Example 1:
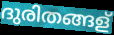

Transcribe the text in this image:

ദുരിതങ്ങള്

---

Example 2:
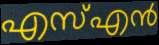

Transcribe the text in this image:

എസ്എൻ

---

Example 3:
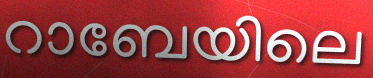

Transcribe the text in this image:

റാബേയിലെ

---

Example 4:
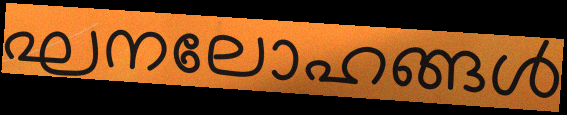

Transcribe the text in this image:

ഘനലോഹങ്ങൾ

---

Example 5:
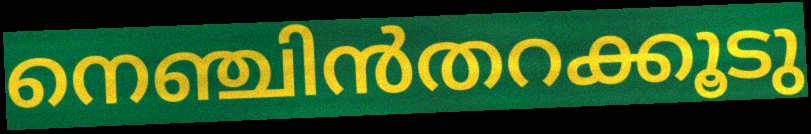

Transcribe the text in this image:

നെഞ്ചിൻതറക്കൂടു